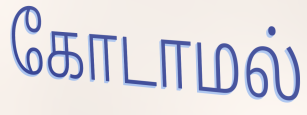
கோடாமல்